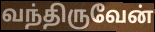
வந்திருவேன்